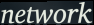
network